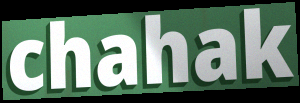
chahak